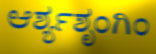
ಆರ್ಶ್ಯಶೃಂಗಿಂ